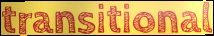
transitional